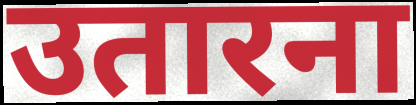
उतारना